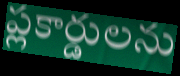
ప్లకార్డులను